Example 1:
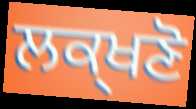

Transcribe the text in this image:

ਲਕ੍ਖਣੋ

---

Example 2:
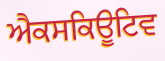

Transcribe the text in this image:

ਐਕਸਕਿਊਟਿਵ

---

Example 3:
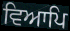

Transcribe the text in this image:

ਵਿਆਪਿ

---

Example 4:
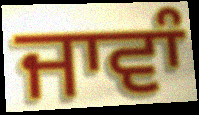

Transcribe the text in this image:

ਜਾਵਾੰ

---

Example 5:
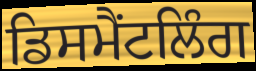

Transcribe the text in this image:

ਡਿਸਮੈਂਟਲਿੰਗ